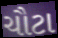
ચૌટા